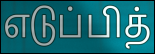
எடுப்பித்